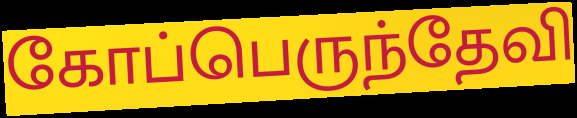
கோப்பெருந்தேவி